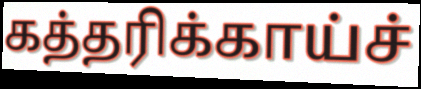
கத்தரிக்காய்ச்